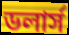
ডলার্স